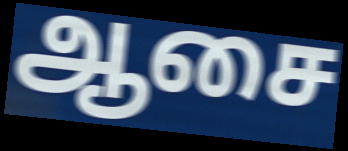
ஆசை